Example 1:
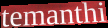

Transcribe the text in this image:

temanthi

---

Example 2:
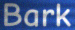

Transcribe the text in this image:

Bark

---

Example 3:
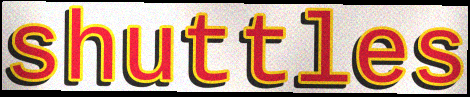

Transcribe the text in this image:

shuttles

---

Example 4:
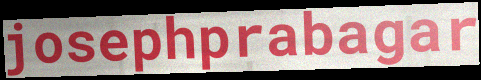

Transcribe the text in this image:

josephprabagar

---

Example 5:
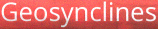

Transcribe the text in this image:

Geosynclines